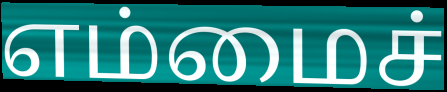
எம்மைச்